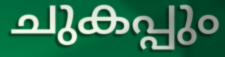
ചുകപ്പും